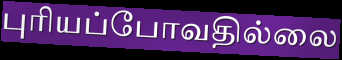
புரியப்போவதில்லை